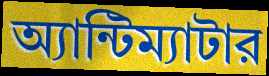
অ্যান্টিম্যাটার